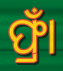
ଫ୍ରାଁ